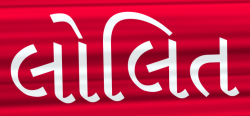
લોલિત